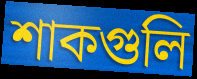
শাকগুলি